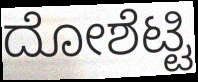
ದೋಶೆಟ್ಟಿ